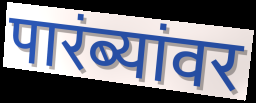
पारंब्यांवर